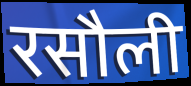
रसौली